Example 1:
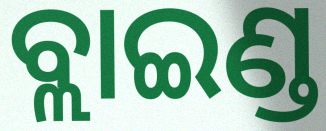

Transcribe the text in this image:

ବ୍ଲାଇଣ୍ଡ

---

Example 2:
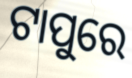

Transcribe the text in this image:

ଟାପୁରେ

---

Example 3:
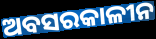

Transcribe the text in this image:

ଅବସରକାଳୀନ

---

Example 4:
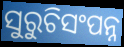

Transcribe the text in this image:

ସୁରୁଚିସଂପନ୍ନ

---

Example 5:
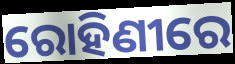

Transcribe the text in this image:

ରୋହିଣୀରେ